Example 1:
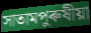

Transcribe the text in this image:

সাতামপুৰুষীয়া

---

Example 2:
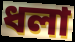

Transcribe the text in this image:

ধলা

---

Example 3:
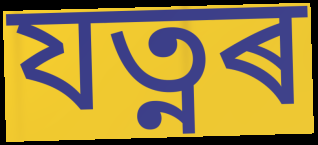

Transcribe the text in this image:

যত্নৰ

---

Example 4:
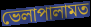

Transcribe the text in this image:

ভেলাপালামত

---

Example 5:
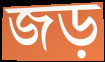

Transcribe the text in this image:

জড়